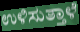
ಉಳಿಸುತ್ತಾಳೆ